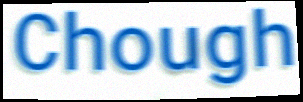
Chough